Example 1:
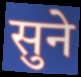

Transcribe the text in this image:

सुने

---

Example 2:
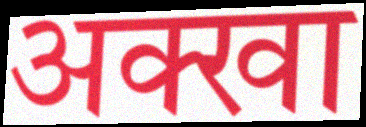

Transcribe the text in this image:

अक्खा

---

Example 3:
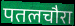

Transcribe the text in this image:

पतलचौरा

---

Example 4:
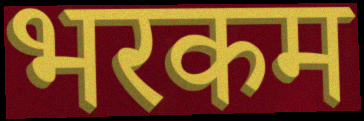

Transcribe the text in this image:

भरकम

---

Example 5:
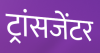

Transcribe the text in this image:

ट्रांसजेंटर